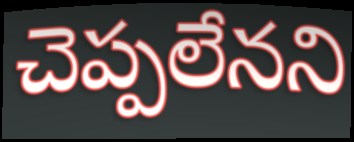
చెప్పలేనని